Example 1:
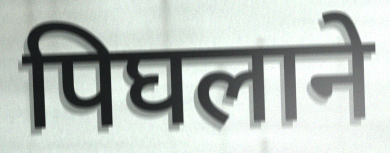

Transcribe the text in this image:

पिघलाने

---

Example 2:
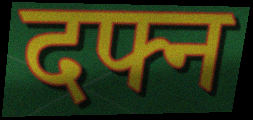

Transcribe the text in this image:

दफ्न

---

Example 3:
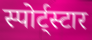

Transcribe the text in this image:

स्पोर्ट्स्टार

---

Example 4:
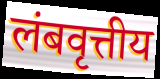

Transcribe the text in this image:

लंबवृत्तीय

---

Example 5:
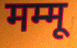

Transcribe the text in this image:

मम्मू